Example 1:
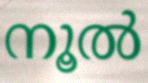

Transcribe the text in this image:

നൂൽ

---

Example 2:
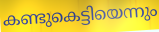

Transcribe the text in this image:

കണ്ടുകെട്ടിയെന്നും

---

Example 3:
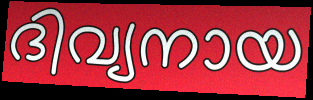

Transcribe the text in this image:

ദിവ്യനായ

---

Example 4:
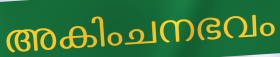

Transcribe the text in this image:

അകിംചനഭവം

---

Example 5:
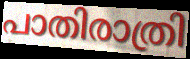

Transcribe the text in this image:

പാതിരാത്രി